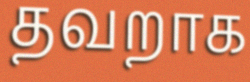
தவறாக